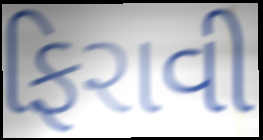
ફિરાવી